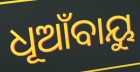
ଧୂଆଁବାୟୁ